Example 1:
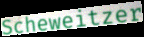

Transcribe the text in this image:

Scheweitzer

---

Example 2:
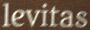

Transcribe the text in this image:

levitas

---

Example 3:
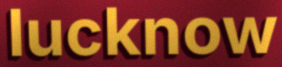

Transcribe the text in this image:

lucknow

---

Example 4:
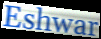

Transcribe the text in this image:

Eshwar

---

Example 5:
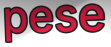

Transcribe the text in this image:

pese